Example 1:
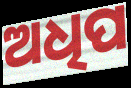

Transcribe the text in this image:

ଅଧିପ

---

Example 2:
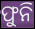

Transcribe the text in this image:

ଫୁନି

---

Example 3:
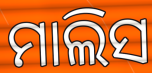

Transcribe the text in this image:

ମାଲିସ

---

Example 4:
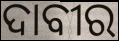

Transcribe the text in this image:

ଦାବୀର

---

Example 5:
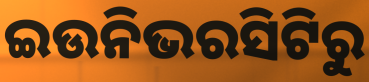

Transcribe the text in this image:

ଇଉନିଭରସିଟିରୁ